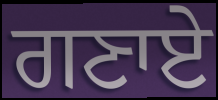
ਗਣਾਏ